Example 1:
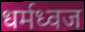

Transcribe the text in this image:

धर्मध्वज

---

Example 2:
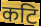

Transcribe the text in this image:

कटि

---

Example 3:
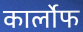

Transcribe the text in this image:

कार्लोफ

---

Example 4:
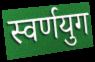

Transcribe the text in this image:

स्वर्णयुग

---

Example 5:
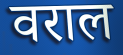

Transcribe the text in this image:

वराल